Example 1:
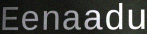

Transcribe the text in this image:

Eenaadu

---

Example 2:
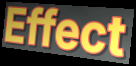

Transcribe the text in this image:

Effect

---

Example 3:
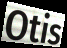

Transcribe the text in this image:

Otis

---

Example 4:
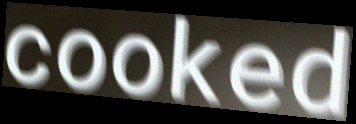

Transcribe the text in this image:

cooked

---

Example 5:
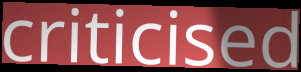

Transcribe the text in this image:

criticised